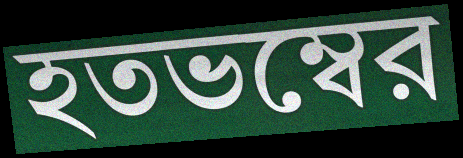
হতভম্বের